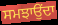
ਸਮਝਾਉਂਦਾ